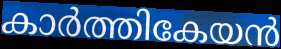
കാർത്തികേയൻ